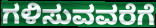
ಗಳಿಸುವವರೆಗೆ